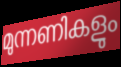
മുന്നണികളും